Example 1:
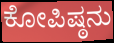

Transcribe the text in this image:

ಕೋಪಿಷ್ಠನು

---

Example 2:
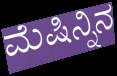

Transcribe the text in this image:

ಮೆಷಿನ್ನಿನ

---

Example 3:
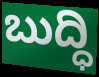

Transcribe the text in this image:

ಬುದ್ಧಿ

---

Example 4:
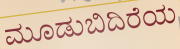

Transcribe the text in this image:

ಮೂಡುಬಿದಿರೆಯ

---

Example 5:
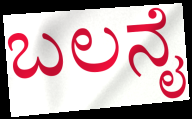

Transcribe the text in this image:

ಬಲನೈ